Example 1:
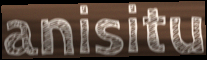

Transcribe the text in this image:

anisitu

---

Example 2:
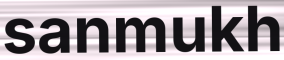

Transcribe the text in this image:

sanmukh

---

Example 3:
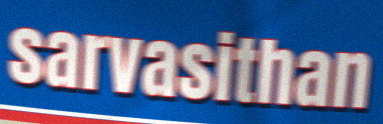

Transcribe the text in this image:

sarvasithan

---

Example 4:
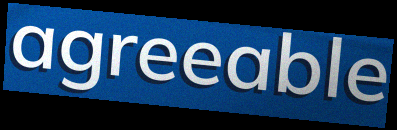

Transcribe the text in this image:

agreeable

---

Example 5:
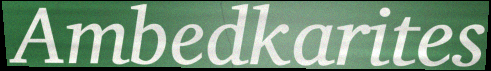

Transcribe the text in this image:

Ambedkarites